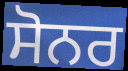
ਸੋਨਰ